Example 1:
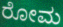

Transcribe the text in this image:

ರೋಮ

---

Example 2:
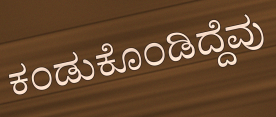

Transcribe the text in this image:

ಕಂಡುಕೊಂಡಿದ್ದೆವು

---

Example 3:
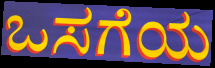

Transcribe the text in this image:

ಒಸಗೆಯ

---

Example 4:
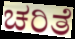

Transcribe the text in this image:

ಚರಿತೆ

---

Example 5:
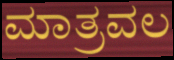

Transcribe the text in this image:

ಮಾತ್ರವಲ